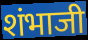
शंभाजी